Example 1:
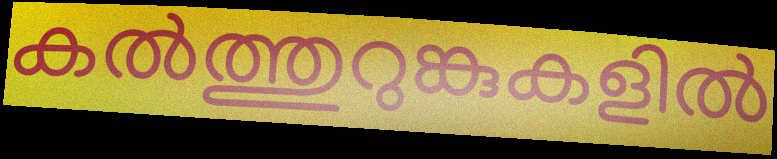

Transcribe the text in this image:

കൽത്തുറുങ്കുകളിൽ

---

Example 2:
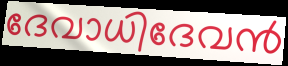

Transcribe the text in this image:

ദേവാധിദേവൻ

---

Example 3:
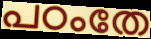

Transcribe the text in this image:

പഠംതേ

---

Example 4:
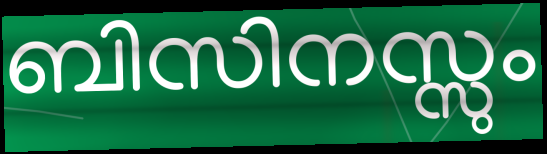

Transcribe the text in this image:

ബിസിനസ്സും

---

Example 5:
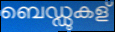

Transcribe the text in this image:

ബെഡ്ഡുകള്